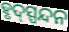
ହୃଦ୍‍ସ୍ପନ୍ଦନ